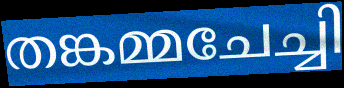
തങ്കമ്മചേച്ചി